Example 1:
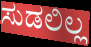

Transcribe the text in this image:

ಸುಡಲಿಲ್ಲ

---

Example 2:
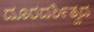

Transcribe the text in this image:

ದೂರದರ್ಶಿತ್ವದ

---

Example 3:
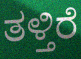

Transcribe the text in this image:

ತಳ್ತಿರೆ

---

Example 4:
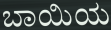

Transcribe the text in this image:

ಬಾಯಿಯ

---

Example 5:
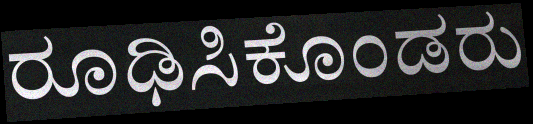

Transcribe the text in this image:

ರೂಢಿಸಿಕೊಂಡರು